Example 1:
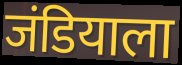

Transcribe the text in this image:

जंडियाला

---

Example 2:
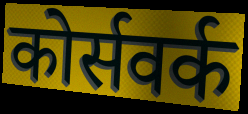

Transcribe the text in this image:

कोर्सवर्क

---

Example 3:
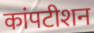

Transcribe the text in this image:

कांपटीशन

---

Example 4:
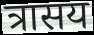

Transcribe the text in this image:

त्रासय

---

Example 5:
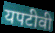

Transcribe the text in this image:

यपटीवी